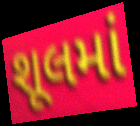
શૂલમાં